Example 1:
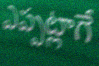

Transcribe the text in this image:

ఎప్పట్లాగే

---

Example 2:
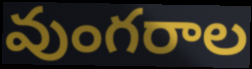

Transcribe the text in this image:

వుంగరాల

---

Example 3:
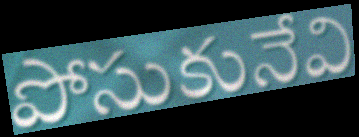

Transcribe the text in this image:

పోసుకునేవి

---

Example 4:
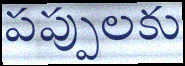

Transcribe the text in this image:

పప్పులకు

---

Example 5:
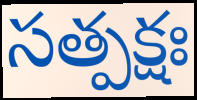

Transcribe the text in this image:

సత్పక్షః